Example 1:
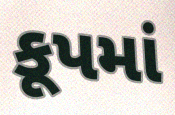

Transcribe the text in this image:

કૂપમાં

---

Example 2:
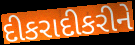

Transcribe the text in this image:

દીકરાદીકરીને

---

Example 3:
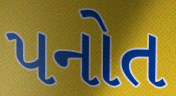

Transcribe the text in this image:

પનોત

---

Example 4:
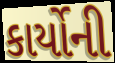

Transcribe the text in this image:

કાર્યોની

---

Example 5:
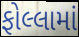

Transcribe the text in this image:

ફોલ્લામાં